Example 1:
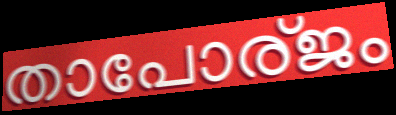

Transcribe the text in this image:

താപോര്ജം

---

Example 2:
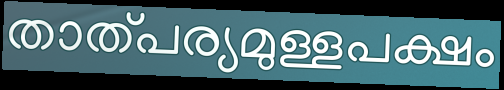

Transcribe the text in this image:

താത്പര്യമുള്ളപക്ഷം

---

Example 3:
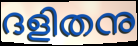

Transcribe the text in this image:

ദളിതനു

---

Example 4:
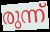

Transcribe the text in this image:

രുന്ന്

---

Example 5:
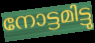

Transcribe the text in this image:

നോട്ടമിട്ടു